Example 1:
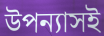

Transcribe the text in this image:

উপন্যাসই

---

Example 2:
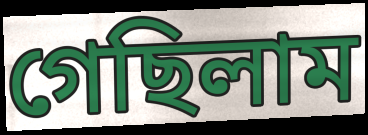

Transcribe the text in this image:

গেছিলাম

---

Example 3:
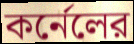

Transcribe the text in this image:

কর্নেলের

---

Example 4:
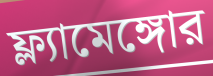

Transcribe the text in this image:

ফ্ল্যামেঙ্গোর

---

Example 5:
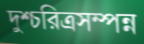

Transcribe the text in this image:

দুশ্চরিত্রসম্পন্ন